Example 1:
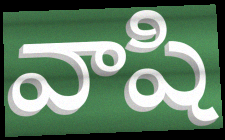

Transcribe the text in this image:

వాషి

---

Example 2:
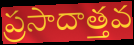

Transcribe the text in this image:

ప్రసాదాత్తవ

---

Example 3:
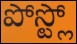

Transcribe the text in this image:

పోస్ట్లో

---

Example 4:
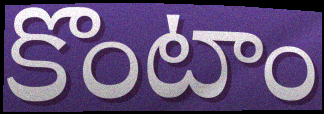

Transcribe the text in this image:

కొంటాం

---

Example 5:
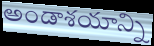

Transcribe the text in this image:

అండాశయాన్ని